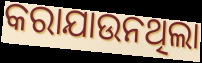
କରାଯାଉନଥିଲା